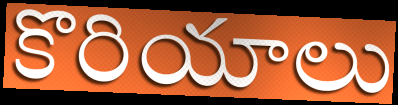
కొరియాలు